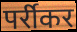
पर्रीकर